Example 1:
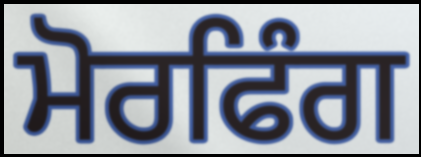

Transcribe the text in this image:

ਮੋਰਫਿੰਗ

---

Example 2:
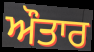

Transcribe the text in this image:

ਔਤਾਰ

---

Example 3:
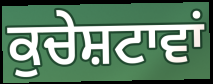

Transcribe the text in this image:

ਕੁਚੇਸ਼ਟਾਵਾਂ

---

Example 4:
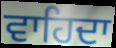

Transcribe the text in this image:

ਵਾਹਿਦਾ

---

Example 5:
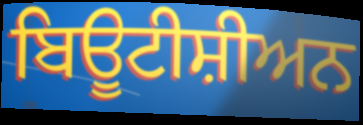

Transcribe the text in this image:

ਬਿਊਟੀਸ਼ੀਅਨ